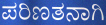
ಪರಿಣತನಾಗಿ